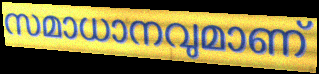
സമാധാനവുമാണ്